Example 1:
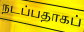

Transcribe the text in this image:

நடப்பதாகப்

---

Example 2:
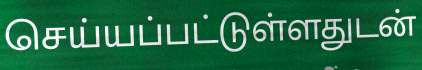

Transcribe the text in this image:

செய்யப்பட்டுள்ளதுடன்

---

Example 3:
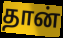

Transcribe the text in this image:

தான்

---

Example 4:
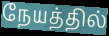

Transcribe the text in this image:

நேயத்தில்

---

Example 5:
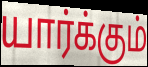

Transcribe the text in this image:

யார்க்கும்